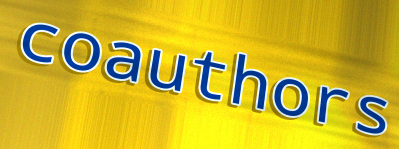
coauthors